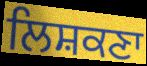
ਲਿਸ਼ਕਣਾ